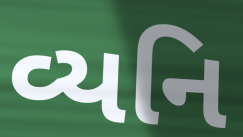
વ્યનિ